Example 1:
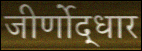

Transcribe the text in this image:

जीर्णोद्धार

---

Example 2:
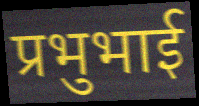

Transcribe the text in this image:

प्रभुभाई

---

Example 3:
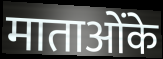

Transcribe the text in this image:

माताओंके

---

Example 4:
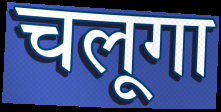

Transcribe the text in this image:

चलूगा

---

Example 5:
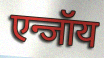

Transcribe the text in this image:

एन्जॉय